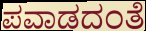
ಪವಾಡದಂತೆ